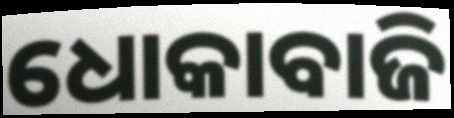
ଧୋକାବାଜି